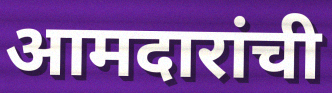
आमदारांची